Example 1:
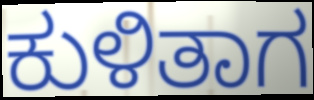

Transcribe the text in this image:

ಕುಳಿತಾಗ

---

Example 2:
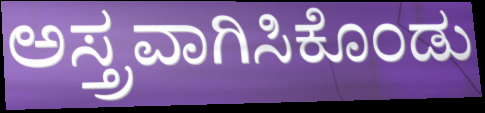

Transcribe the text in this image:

ಅಸ್ತ್ರವಾಗಿಸಿಕೊಂಡು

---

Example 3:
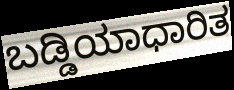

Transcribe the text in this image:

ಬಡ್ಡಿಯಾಧಾರಿತ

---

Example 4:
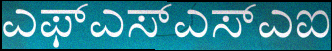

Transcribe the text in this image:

ಎಫ್ಎಸ್ಎಸ್ಎಐ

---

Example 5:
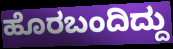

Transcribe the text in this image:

ಹೊರಬಂದಿದ್ದು